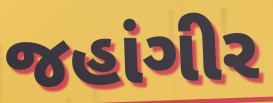
જહાંગીર